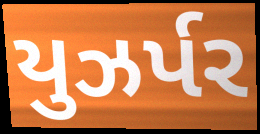
યુઝર્પર